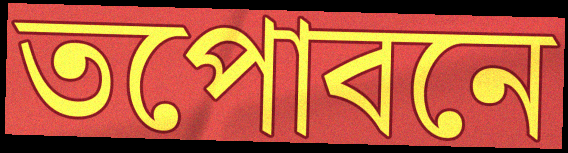
তপোবনে